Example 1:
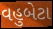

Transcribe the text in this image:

વહુબેટા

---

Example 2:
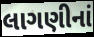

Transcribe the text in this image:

લાગણીનાં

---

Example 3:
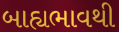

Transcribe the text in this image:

બાહ્યભાવથી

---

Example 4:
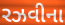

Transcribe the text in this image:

રઝવીના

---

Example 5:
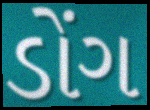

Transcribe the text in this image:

ડોંગ